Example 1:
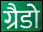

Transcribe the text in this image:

ग्रैडो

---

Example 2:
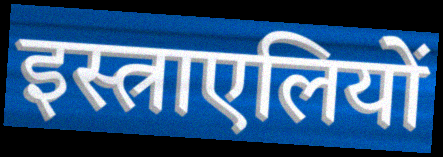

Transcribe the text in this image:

इस्त्राएलियों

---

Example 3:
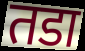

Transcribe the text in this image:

तडा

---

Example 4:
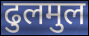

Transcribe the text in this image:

ढुलमुल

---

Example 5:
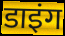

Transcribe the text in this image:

डाइंग